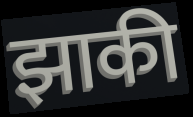
झाकी